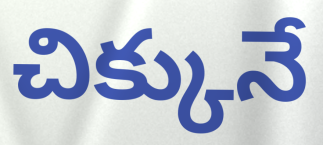
చిక్కునే